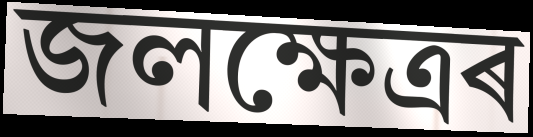
জলক্ষেত্ৰৰ